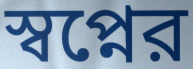
স্বপ্নের